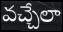
వచ్చేలా